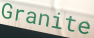
Granite